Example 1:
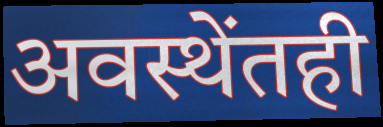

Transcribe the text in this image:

अवस्थेंतही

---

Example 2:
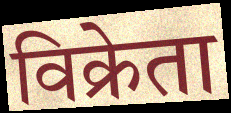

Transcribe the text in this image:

विक्रेता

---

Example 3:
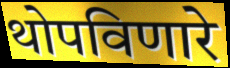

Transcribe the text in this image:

थोपविणारे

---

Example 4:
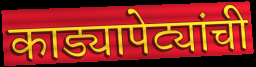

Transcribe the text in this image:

काड्यापेट्यांची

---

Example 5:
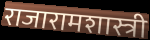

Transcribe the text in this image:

राजारामशास्त्री